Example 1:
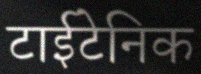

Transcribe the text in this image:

टाईटेनिक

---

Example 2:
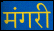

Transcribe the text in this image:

मंगरी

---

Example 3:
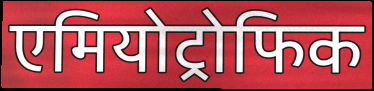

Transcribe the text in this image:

एमियोट्रोफिक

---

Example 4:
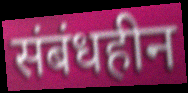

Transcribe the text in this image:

संबंधहीन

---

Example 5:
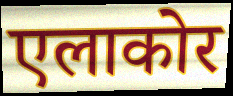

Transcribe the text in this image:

एलाकोर